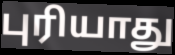
புரியாது